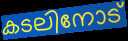
കടലിനോട്